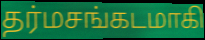
தர்மசங்கடமாகி